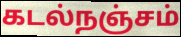
கடல்நஞ்சம்